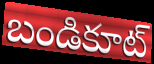
బండికూట్